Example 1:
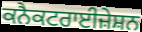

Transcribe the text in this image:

ਕਨੈਕਟਰਾਈਜ਼ੇਸ਼ਨ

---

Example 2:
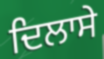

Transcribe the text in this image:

ਦਿਲਾਸੇ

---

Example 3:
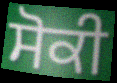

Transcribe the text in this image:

ਸੋਕੀ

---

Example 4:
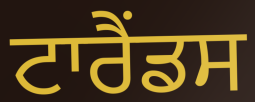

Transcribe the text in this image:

ਟਾਰੈਂਡਸ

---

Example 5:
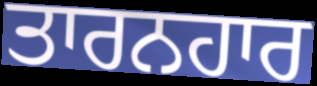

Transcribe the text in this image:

ਤਾਰਨਹਾਰ